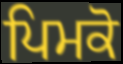
ਪਿਮਕੋ